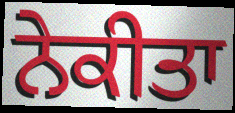
ਨੇਕੀਤਾ